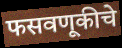
फसवणूकीचे